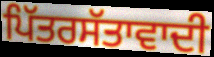
ਪਿੱਤਰਸੱਤਾਵਾਦੀ